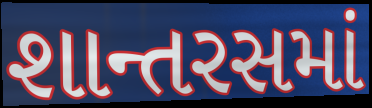
શાન્તરસમાં